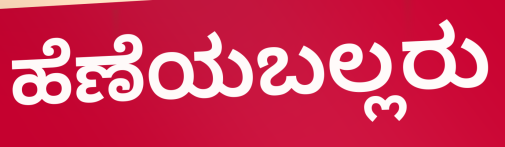
ಹೆಣೆಯಬಲ್ಲರು